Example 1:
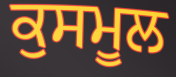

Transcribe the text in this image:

ਕੁਸਮੂਲ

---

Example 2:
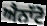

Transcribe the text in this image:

ਐਨਾੱਟੋ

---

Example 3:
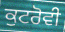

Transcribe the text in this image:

ਕੁਟਰੋਵੀ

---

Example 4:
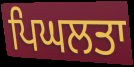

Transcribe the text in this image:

ਪਿਘਲਤਾ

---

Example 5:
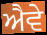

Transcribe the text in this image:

ਐਵੇ